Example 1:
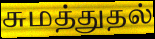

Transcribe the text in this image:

சுமத்துதல்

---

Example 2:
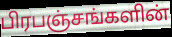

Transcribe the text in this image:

பிரபஞ்சங்களின்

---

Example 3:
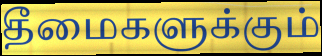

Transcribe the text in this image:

தீமைகளுக்கும்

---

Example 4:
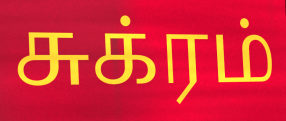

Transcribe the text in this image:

சுக்ரம்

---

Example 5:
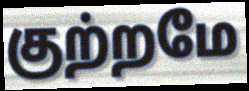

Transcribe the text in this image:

குற்றமே